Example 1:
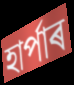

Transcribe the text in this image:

হাৰ্পাৰ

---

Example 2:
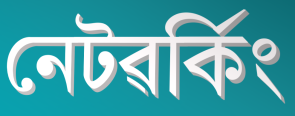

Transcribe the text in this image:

নেটৱৰ্কিং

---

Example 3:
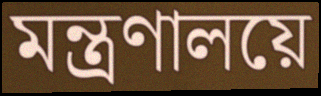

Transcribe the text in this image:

মন্ত্ৰণালয়ে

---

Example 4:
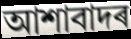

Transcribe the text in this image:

আশাবাদৰ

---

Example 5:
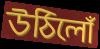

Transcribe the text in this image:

উঠিলোঁ